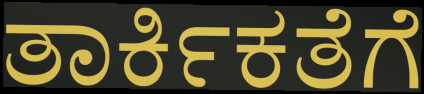
ತಾರ್ಕಿಕತೆಗೆ